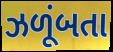
ઝળૂંબતા